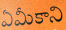
ఏమీకాని